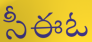
సీఈఓ